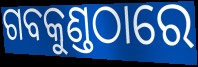
ଗବକୁଣ୍ଡଠାରେ